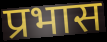
प्रभास